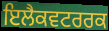
ਇਲੈਕਵਟਰਰਕ